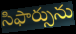
సిఫార్సును